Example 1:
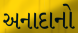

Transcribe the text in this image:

અનાદાનો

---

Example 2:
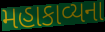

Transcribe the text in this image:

મહાકાવ્યના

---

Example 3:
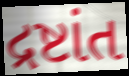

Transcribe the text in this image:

દ્રષ્ટાંત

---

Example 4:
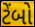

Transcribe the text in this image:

ટેંબો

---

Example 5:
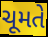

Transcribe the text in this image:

ચૂમતે